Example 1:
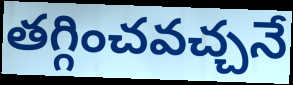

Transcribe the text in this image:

తగ్గించవచ్చనే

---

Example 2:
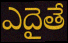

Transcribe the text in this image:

ఎదైతే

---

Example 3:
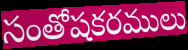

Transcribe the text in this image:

సంతోషకరములు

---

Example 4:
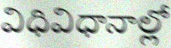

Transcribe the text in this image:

విధివిధానాల్లో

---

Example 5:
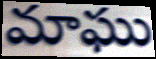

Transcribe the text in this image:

మాఘు